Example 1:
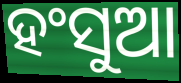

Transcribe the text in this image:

ହଂସୁଆ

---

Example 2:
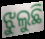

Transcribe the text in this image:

ଝୁଲୁଛି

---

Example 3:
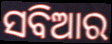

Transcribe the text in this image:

ସବିଆର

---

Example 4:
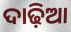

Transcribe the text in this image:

ଦାଢ଼ିଆ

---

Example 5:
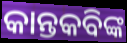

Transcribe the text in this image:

କାନ୍ତକବିଙ୍କ